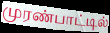
முரண்பாட்டில்